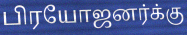
பிரயோஜனர்க்கு